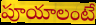
పూయాలంటే